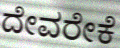
ದೇವರೇಕೆ